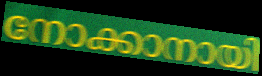
നോക്കാനായി